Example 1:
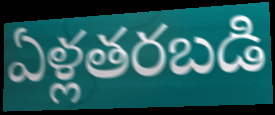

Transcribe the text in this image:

ఏళ్లతరబడి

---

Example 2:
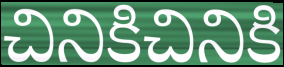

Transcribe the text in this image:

చినికిచినికి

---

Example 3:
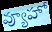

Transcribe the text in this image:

వ్యూహో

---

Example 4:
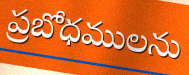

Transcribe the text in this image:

ప్రబోధములను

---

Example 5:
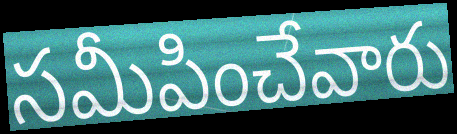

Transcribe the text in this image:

సమీపించేవారు